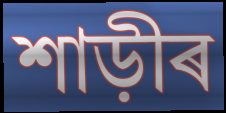
শাড়ীৰ